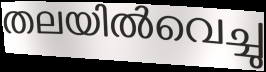
തലയിൽവെച്ചു